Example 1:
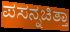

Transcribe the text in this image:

ಪಸನ್ನಚಿತ್ತಾ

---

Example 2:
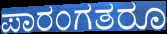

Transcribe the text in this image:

ಪಾರಂಗತರೂ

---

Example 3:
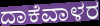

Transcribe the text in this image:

ದಾಕೆವಾಳರ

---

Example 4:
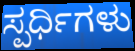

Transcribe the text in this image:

ಸ್ಪರ್ಧಿಗಳು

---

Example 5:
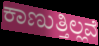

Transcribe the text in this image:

ಕಾಣುತ್ತಿಲ್ಲವೆ